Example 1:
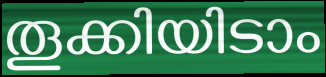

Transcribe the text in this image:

തൂക്കിയിടാം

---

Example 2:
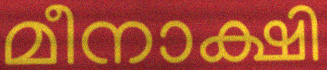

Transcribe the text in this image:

മീനാക്ഷി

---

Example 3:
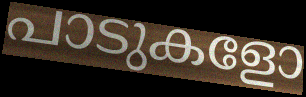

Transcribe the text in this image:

പാടുകളോ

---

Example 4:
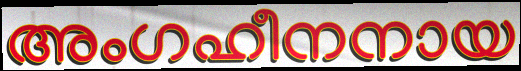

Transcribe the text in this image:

അംഗഹീനനായ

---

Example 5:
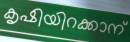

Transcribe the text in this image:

കൃഷിയിറക്കാന്